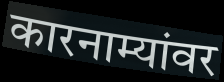
कारनाम्यांवर